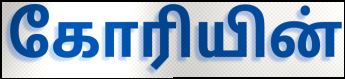
கோரியின்